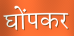
घोंपकर